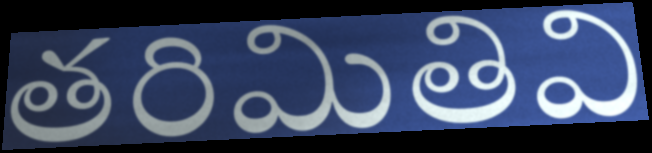
తరిమితివి